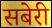
सबेरी